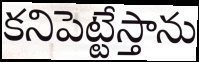
కనిపెట్టేస్తాను